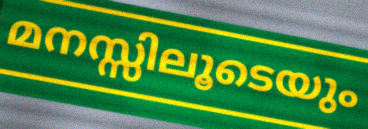
മനസ്സിലൂടെയും